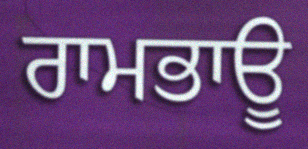
ਰਾਮਭਾਊ